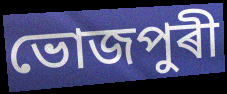
ভোজপুৰী